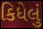
કિધેલું